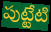
పుట్టేటి